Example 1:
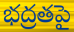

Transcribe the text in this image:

భద్రతపై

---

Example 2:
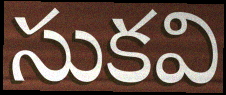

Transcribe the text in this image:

సుకవి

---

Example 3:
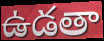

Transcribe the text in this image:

ఉడతా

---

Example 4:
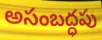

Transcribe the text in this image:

అసంబద్ధపు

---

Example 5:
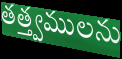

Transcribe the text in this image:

తత్త్వములను